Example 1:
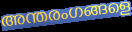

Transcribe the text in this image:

അന്തരംഗങ്ങളെ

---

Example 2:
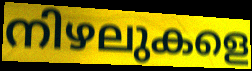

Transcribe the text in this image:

നിഴലുകളെ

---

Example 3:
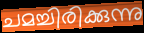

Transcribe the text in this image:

ചമച്ചിരിക്കുന്നു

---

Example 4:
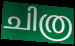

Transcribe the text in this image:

ചിത്ര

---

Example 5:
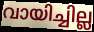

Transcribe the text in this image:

വായിച്ചില്ല